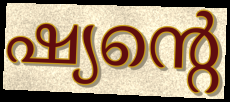
ഷ്യന്റെ